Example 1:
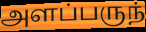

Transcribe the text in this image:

அளப்பருந்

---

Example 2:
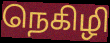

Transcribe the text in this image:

நெகிழி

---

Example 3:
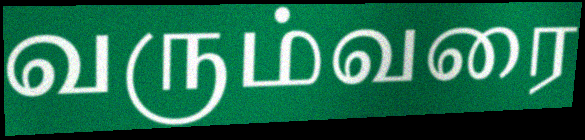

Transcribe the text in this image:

வரும்வரை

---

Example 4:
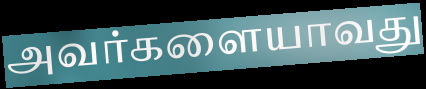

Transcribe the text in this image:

அவர்களையாவது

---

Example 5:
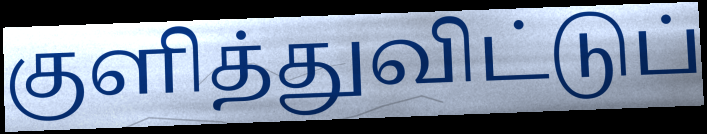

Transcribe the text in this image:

குளித்துவிட்டுப்